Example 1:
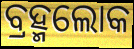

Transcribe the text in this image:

ବ୍ରହ୍ମଲୋକ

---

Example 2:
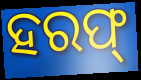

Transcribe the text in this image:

ହରଫ୍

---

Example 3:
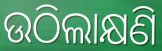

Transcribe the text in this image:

ଉଠିଲାକ୍ଷଣି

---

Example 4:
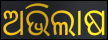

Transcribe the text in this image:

ଅଭିଲାଷ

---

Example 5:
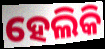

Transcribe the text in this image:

ହେଲିକି